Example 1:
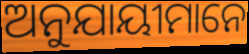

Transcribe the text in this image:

ଅନୁଯାୟୀମାନେ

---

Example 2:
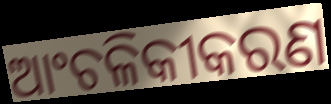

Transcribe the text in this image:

ଆଂଚଳିକୀକରଣ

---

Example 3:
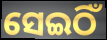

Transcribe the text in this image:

ସେଇଠିଁ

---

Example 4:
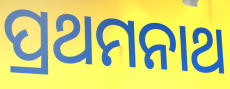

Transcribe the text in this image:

ପ୍ରଥମନାଥ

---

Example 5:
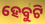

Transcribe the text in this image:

ହେବୁଟି